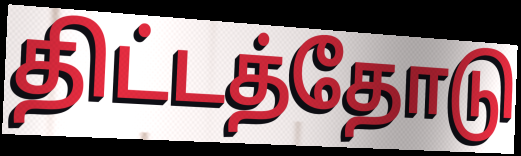
திட்டத்தோடு